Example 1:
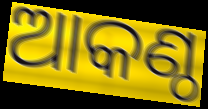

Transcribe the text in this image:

ଆକଣ୍ଠ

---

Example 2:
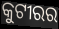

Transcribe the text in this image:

କୁଟୀରର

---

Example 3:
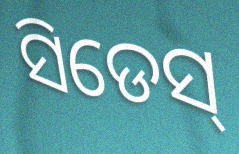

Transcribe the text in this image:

ସିଡେସ୍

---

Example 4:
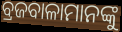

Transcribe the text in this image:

ବ୍ରଜବାଳାମାନଙ୍କୁ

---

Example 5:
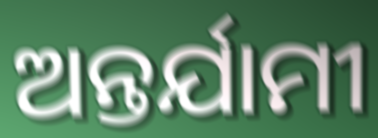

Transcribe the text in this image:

ଅନ୍ତର୍ଯାମୀ